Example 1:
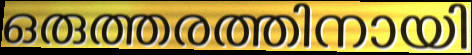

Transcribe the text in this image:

ഒരുത്തരത്തിനായി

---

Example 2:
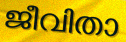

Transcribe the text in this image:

ജീവിതാ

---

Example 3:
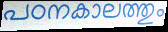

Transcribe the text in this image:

പഠനകാലത്തും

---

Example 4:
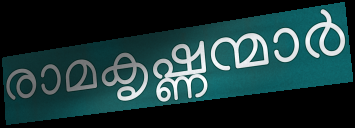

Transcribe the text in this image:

രാമകൃഷ്ണന്മാർ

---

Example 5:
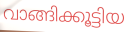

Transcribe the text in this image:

വാങ്ങിക്കൂട്ടിയ